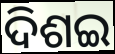
ଦିଶଇ